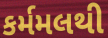
કર્મમલથી